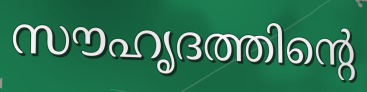
സൗഹൃദത്തിന്റെ